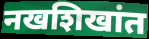
नखशिखांत